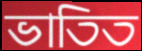
ভাতিত